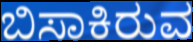
ಬಿಸಾಕಿರುವ